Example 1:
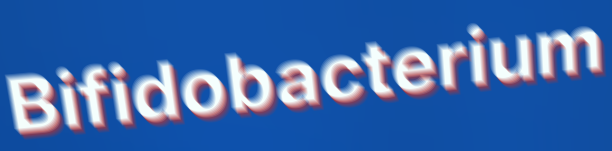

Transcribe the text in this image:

Bifidobacterium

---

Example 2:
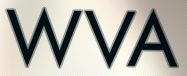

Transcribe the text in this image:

WVA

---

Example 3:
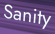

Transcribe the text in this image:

Sanity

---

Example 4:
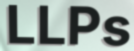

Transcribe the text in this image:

LLPs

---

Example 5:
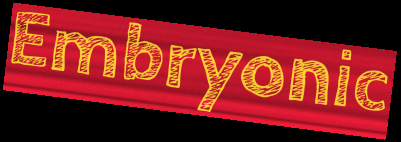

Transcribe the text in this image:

Embryonic